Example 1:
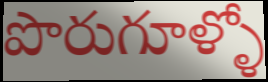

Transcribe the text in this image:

పొరుగూళ్ళో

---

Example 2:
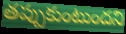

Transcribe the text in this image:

తప్పుకుంటుందని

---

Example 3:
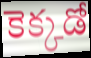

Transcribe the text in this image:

కెక్కడో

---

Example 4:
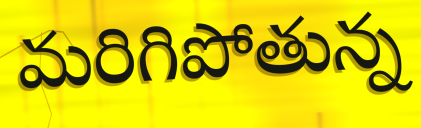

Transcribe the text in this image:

మరిగిపోతున్న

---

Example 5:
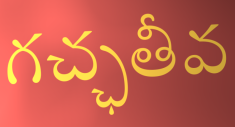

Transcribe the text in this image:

గచ్ఛతీవ